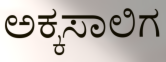
ಅಕ್ಕಸಾಲಿಗ